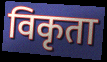
विकृता